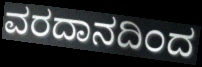
ವರದಾನದಿಂದ